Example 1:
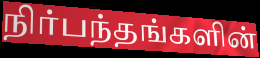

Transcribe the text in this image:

நிர்பந்தங்களின்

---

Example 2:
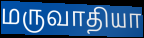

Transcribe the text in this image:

மருவாதியா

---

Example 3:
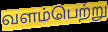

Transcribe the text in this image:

வளம்பெற்று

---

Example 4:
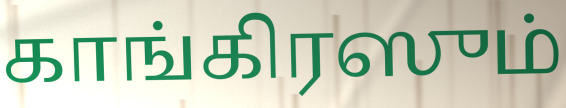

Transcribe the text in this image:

காங்கிரஸும்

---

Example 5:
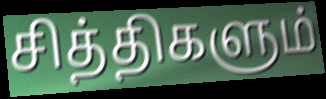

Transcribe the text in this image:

சித்திகளும்